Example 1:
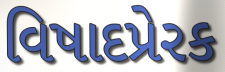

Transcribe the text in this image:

વિષાદપ્રેરક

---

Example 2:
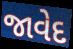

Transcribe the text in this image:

જાવેદ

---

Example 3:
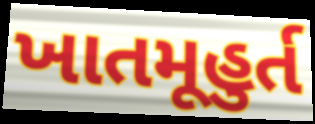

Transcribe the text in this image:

ખાતમૂહુર્ત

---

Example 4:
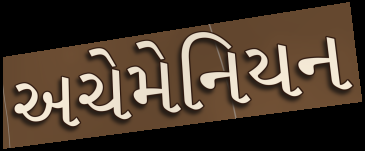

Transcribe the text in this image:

અચેમેનિયન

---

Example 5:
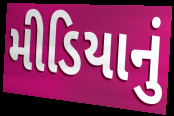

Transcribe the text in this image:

મીડિયાનું